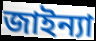
জাইন্যা